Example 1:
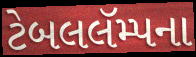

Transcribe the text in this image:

ટેબલલૅમ્પના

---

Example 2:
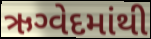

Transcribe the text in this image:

ઋગ્વેદમાંથી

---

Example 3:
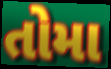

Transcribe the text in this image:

તોમા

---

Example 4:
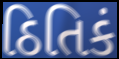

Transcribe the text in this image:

ઠિતિકં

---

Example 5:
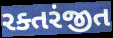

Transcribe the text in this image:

રક્તરંજીત